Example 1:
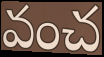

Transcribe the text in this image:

వంచ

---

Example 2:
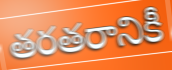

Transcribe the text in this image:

తరతరానికీ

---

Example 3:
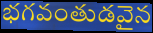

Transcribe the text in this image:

భగవంతుడవైన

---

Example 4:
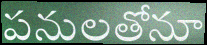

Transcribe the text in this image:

పనులతోనూ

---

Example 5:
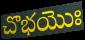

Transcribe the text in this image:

చొభయొః